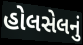
હોલસેલનું